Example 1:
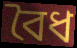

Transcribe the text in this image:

বৈধ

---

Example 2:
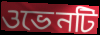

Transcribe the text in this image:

ওভেনটি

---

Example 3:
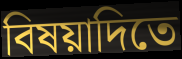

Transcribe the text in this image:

বিষয়াদিতে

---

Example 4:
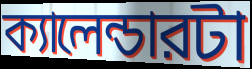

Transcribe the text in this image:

ক্যালেন্ডারটা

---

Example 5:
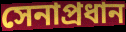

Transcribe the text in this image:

সেনাপ্রধান